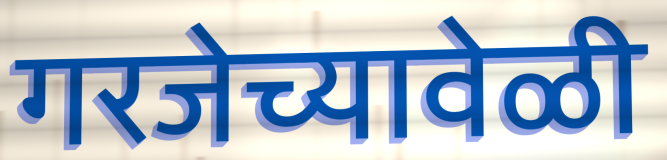
गरजेच्यावेळी